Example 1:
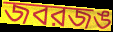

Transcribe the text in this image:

জবরজঙ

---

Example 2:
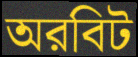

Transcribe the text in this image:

অরবিট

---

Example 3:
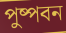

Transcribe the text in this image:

পুষ্পবন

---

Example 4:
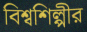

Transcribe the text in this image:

বিশ্বশিল্পীর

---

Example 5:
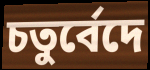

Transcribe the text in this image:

চতুর্বেদে